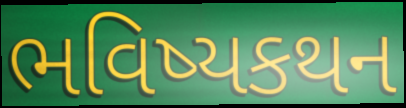
ભવિષ્યકથન